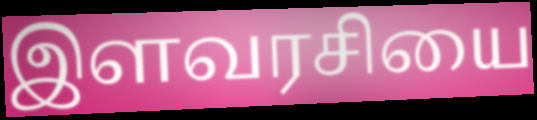
இளவரசியை